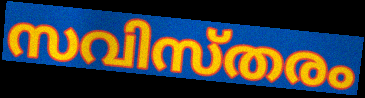
സവിസ്തരം